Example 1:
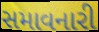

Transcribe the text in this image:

સમાવનારી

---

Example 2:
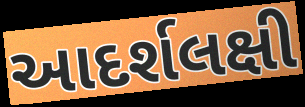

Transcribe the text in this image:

આદર્શલક્ષી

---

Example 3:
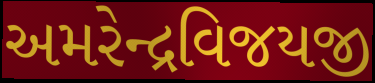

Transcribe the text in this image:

અમરેન્દ્રવિજયજી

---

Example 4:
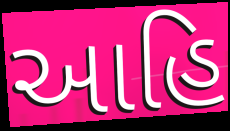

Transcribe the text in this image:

આહિ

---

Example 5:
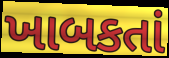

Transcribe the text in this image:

ખાબકતાં